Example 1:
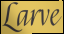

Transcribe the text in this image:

Larve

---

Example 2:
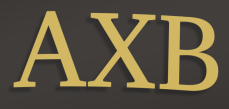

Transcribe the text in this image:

AXB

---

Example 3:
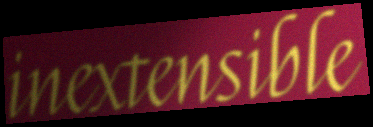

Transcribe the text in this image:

inextensible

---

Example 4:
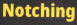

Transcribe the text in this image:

Notching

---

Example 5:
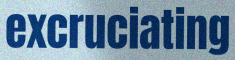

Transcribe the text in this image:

excruciating